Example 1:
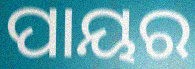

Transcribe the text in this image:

ପାୟର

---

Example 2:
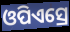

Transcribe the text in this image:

ଓପିଏସ୍ରେ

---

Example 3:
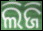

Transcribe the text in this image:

ଲିଜି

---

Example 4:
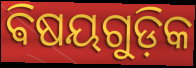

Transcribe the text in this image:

ଵିଷୟଗୁଡ଼ିକ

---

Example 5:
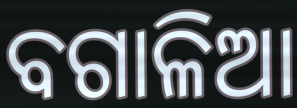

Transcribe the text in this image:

ବଗାଳିଆ